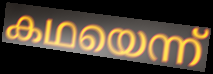
കഥയെന്ന്